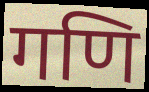
गणि